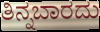
ತಿನ್ನಬಾರದು